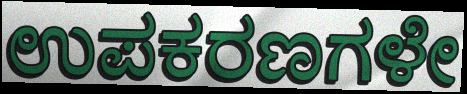
ಉಪಕರಣಗಳೇ